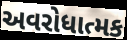
અવરોધાત્મક